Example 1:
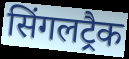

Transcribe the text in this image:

सिंगलट्रैक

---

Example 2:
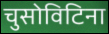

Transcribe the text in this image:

चुसोविटिना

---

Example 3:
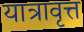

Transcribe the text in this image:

यात्रावृत्त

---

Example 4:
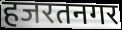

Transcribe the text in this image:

हजरतनगर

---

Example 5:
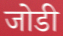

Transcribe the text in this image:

जोडी